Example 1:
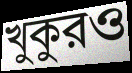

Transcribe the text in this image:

খুকুরও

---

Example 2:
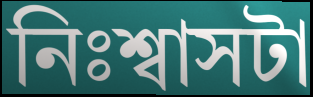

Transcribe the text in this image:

নিঃশ্বাসটা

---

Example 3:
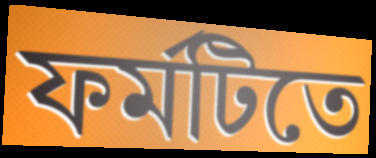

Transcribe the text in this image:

ফর্মটিতে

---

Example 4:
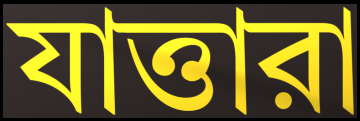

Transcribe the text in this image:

যাত্তারা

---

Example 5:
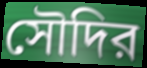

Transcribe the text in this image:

সৌদির